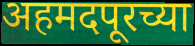
अहमदपूरच्या